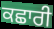
ਕਛਾਰੀ